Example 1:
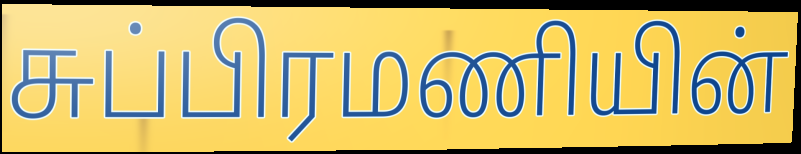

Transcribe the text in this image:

சுப்பிரமணியின்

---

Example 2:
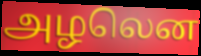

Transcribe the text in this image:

அழலென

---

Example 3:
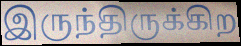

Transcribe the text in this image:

இருந்திருக்கிற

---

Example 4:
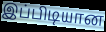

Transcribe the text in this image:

இப்பிடியான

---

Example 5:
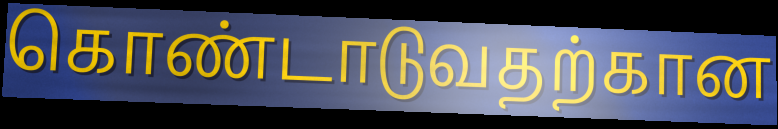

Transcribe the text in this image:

கொண்டாடுவதற்கான